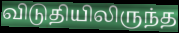
விடுதியிலிருந்த